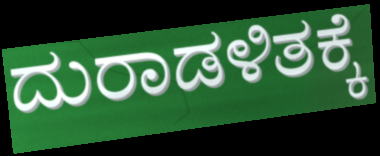
ದುರಾಡಳಿತಕ್ಕೆ